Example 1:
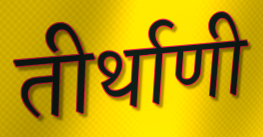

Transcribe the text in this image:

तीर्थाणी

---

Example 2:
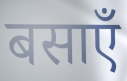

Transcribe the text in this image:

बसाएँ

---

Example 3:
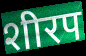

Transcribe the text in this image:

शीरप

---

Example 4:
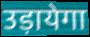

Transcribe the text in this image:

उड़ायेगा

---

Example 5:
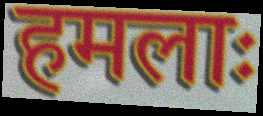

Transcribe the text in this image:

हमलाः